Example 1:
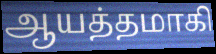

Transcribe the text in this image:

ஆயத்தமாகி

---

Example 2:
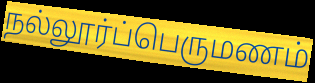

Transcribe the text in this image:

நல்லூர்ப்பெருமணம்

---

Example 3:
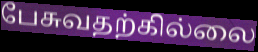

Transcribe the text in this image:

பேசுவதற்கில்லை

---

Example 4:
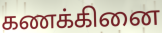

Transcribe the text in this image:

கணக்கினை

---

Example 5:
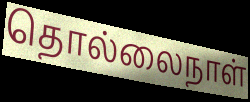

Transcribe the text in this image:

தொல்லைநாள்